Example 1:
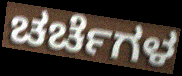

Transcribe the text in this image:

ಚರ್ಚೆಗಳ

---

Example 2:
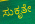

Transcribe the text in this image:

ಸುಕೃತೇ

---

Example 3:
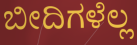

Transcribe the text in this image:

ಬೀದಿಗಳೆಲ್ಲ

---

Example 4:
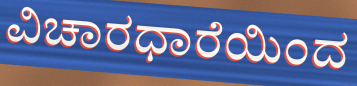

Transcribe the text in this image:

ವಿಚಾರಧಾರೆಯಿಂದ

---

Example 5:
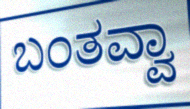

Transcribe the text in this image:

ಬಂತವ್ವಾ